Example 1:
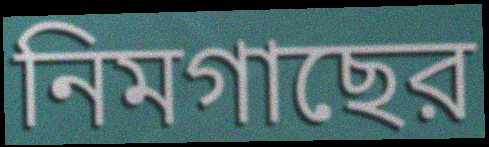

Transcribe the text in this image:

নিমগাছের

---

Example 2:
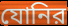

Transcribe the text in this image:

যোনির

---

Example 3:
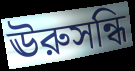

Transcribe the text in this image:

ঊরুসন্ধি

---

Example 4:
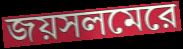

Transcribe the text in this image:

জয়সলমেরে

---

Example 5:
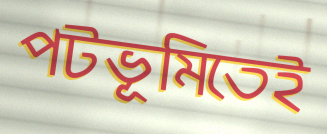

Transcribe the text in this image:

পটভূমিতেই